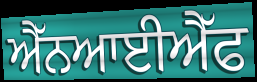
ਐੱਨਆਈਐੱਫ